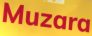
Muzara